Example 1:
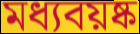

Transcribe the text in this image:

মধ্যবয়ষ্ক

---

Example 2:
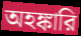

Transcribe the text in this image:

অহঙ্কারি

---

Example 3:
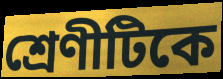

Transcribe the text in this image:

শ্রেণীটিকে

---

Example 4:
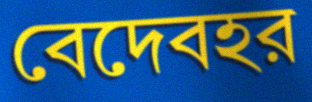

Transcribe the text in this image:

বেদেবহর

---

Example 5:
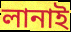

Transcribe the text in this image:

লানাই